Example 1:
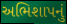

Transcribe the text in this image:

અભિશાપનું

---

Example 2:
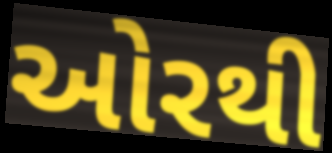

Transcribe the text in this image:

ઓરથી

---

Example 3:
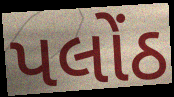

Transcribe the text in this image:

પલોંઠ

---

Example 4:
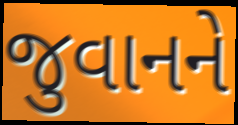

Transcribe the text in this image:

જુવાનને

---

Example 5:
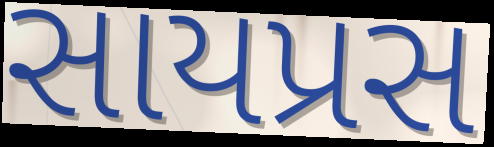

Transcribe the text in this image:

સાયપ્રસ